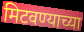
मिटवण्याच्या